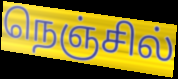
நெஞ்சில்